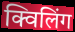
क्विलिंग